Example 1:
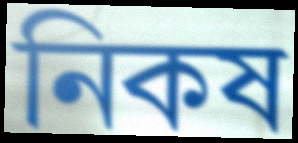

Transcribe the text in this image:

নিকষ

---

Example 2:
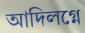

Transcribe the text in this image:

আদিলগ্নে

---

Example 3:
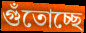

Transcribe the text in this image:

গুঁতোচ্ছে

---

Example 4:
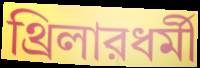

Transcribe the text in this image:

থ্রিলারধর্মী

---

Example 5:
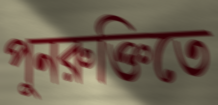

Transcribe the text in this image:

পুনরুক্তিতে